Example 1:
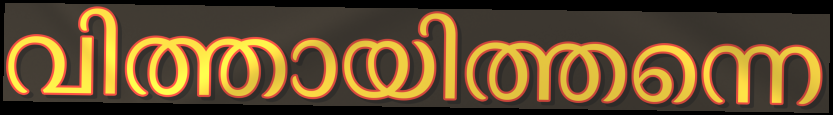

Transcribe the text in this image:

വിത്തായിത്തന്നെ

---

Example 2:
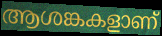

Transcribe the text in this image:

ആശങ്കകളാണ്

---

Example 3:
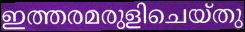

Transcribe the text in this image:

ഇത്തരമരുളിചെയ്തു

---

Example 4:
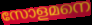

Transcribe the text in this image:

സോളമനെ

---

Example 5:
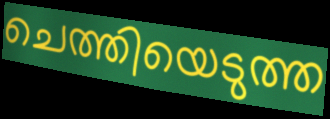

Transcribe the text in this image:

ചെത്തിയെടുത്ത